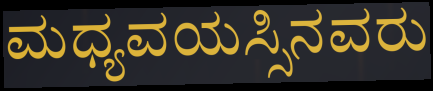
ಮಧ್ಯವಯಸ್ಸಿನವರು